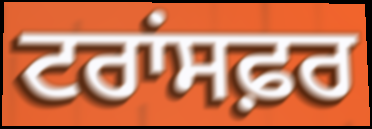
ਟਰਾਂਸਫ਼ਰ